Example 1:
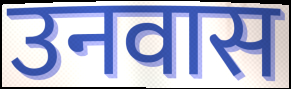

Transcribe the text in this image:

उनवास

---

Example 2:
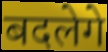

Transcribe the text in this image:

बदलेगे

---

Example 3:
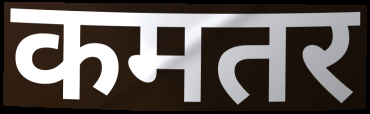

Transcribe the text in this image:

कमतर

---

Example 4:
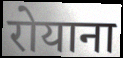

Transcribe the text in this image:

रोयाना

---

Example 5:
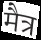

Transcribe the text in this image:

मैत्र